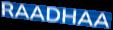
RAADHAA